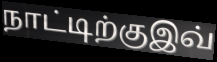
நாட்டிற்குஇவ்